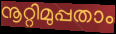
നൂറ്റിമുപ്പതാം